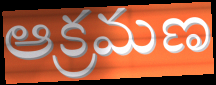
ఆక్రమణ